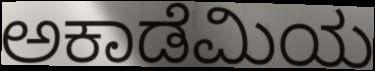
ಅಕಾಡೆಮಿಯ